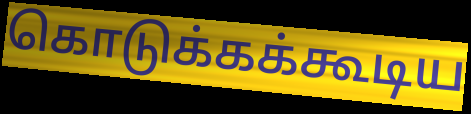
கொடுக்கக்கூடிய